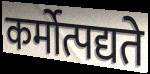
कर्मोत्पद्यते